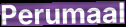
Perumaal